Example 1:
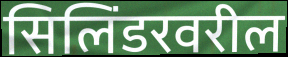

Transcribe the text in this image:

सिलिंडरवरील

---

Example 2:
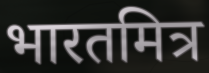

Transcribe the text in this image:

भारतमित्र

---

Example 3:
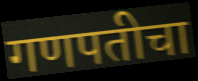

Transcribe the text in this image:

गणपतीचा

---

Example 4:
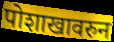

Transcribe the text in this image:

पोशाखावरुन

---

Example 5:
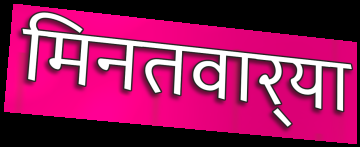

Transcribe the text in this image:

मिनतवार्‍या